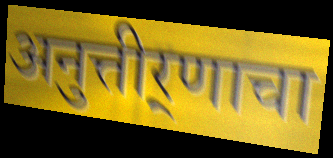
अनुत्तीर्णाचा